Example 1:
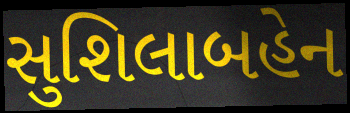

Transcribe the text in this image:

સુશિલાબહેન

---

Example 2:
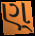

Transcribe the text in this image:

ણ્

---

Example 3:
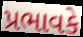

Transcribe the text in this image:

પ્રભાવકે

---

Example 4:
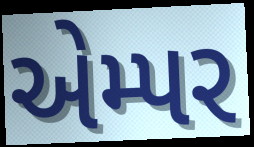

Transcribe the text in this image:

એમ્પર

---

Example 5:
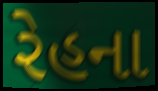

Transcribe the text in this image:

રેહના